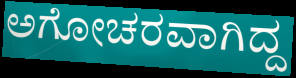
ಅಗೋಚರವಾಗಿದ್ದ